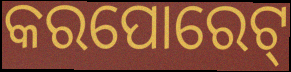
କରପୋରେଟ୍